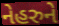
નેહરુને